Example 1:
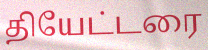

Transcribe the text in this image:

தியேட்டரை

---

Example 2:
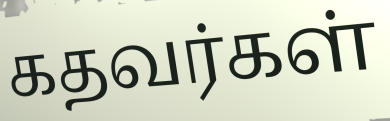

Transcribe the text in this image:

கதவர்கள்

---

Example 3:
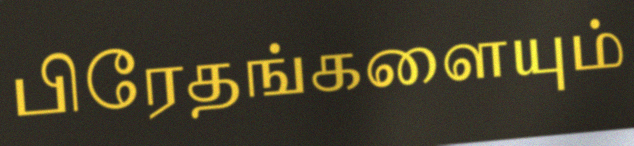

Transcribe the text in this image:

பிரேதங்களையும்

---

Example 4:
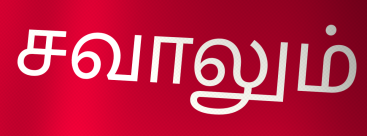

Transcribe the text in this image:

சவாலும்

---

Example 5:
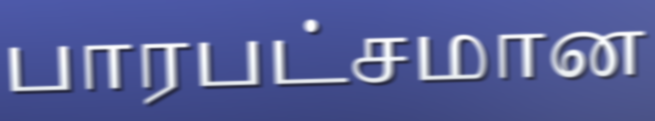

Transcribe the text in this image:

பாரபட்சமான